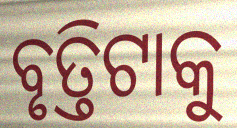
ବୃତ୍ତିଟାକୁ